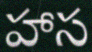
హాస